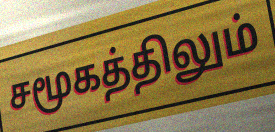
சமூகத்திலும்